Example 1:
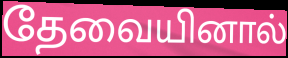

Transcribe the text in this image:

தேவையினால்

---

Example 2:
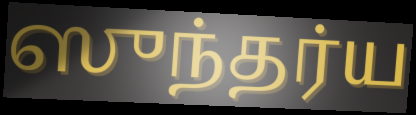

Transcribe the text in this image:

ஸுந்தர்ய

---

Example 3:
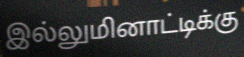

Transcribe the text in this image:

இல்லுமினாட்டிக்கு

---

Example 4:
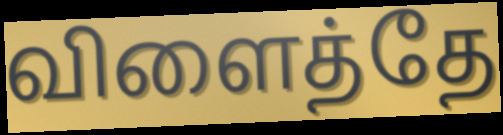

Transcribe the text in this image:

விளைத்தே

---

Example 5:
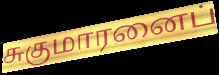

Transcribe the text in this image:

சுகுமாரனைப்